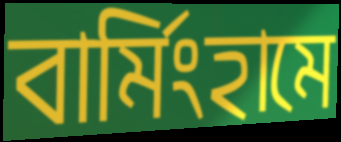
বার্মিংহামে